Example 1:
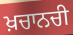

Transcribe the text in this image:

ਖ਼ਚਾਨਚੀ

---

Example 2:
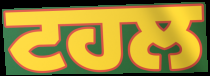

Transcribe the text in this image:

ਟਹਲ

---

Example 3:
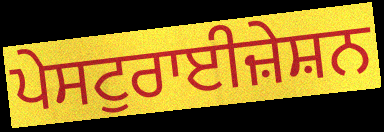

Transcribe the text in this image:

ਪੇਸਟੁਰਾਈਜ਼ੇਸ਼ਨ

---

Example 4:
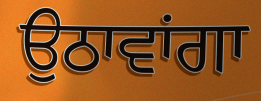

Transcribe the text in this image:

ਉਠਾਵਾਂਗਾ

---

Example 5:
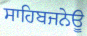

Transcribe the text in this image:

ਸਾਹਿਬਜਨੇਊ